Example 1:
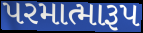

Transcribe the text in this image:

પરમાત્મારૂપ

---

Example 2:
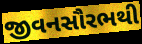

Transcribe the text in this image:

જીવનસૌરભથી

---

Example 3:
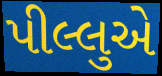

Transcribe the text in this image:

પીલ્લુએ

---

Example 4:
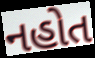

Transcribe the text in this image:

નહોત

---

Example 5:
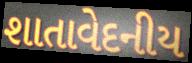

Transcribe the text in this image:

શાતાવેદનીય